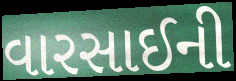
વારસાઈની